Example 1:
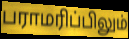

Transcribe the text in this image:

பராமரிப்பிலும்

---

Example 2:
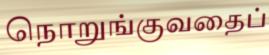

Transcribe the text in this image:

நொறுங்குவதைப்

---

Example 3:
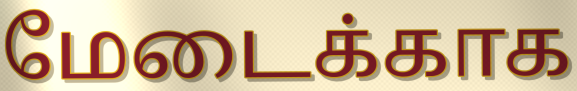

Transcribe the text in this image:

மேடைக்காக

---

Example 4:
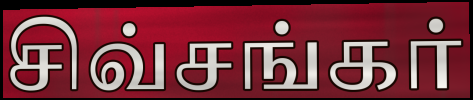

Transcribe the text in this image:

சிவ்சங்கர்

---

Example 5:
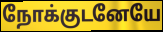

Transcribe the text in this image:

நோக்குடனேயே